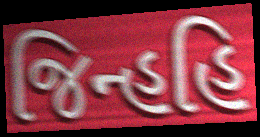
જિન્હહિ